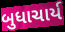
બુધાચાર્ય